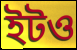
ইটও